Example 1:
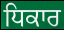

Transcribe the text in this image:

ਧਿਕਾਰ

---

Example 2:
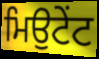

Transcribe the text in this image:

ਮਿਉਟੇਂਟ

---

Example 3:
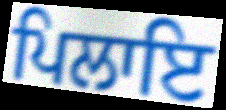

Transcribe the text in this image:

ਪਿਲਾਇ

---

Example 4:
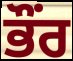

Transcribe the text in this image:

ਭੌਂਰ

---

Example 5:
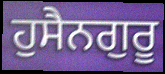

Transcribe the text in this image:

ਹੁਸੈਨਗੁਰੂ